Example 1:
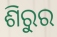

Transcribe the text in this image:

ଶିରୁର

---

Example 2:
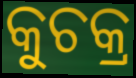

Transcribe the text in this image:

କୁଚକ୍ର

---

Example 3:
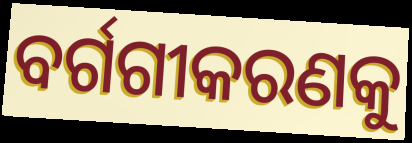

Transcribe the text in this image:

ବର୍ଗଗୀକରଣକୁ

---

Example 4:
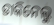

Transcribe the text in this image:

ଡାକିନେଲୁ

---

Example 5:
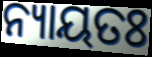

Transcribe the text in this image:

ନ୍ୟାୟତଃ